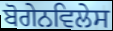
ਬੋਗੇਨਵਿਲੇਸ